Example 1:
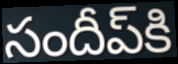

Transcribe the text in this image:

సందీప్‌కి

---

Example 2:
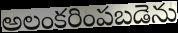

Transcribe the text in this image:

అలంకరింపబడెను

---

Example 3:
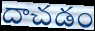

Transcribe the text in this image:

దాచడం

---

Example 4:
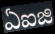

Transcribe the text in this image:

ఏఐజి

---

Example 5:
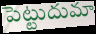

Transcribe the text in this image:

పెట్టుదుమా